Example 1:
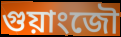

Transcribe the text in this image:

গুয়াংজৌ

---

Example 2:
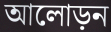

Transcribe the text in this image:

আলোড়ন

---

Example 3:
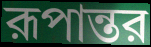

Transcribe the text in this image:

রূপান্তর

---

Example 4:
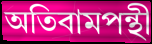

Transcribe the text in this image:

অতিবামপন্থী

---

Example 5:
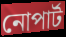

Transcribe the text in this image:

নোপার্ট